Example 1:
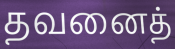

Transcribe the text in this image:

தவனைத்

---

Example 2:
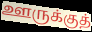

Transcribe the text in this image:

ஊருக்குத்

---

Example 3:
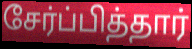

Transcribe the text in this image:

சேர்ப்பித்தார்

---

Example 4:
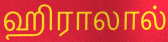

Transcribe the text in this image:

ஹிராலால்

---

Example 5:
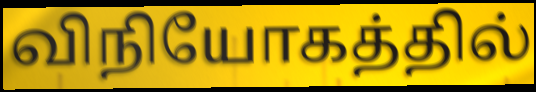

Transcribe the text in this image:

விநியோகத்தில்